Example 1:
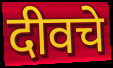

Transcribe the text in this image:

दीवचे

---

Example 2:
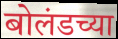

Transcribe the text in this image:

बोलंडच्या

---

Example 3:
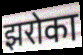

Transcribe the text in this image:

झरोका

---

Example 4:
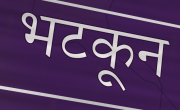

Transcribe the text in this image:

भटकून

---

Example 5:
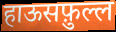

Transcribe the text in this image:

हाऊसफ़ुल्ल